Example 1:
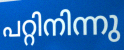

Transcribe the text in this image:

പറ്റിനിന്നു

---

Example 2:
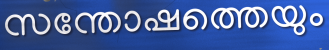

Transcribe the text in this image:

സന്തോഷത്തെയും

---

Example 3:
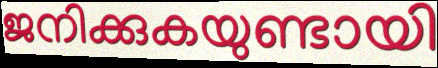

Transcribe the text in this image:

ജനിക്കുകയുണ്ടായി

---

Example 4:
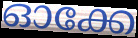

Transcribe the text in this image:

ഓക്കേ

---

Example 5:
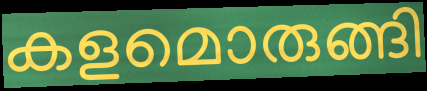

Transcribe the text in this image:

കളമൊരുങ്ങി